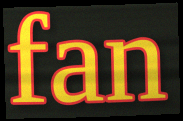
fan